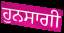
ਹੁਨਸਾਗੀ